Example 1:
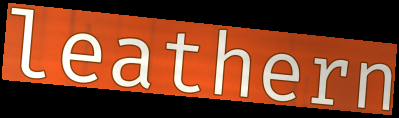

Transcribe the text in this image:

leathern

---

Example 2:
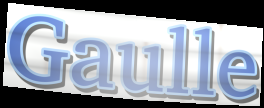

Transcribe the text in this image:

Gaulle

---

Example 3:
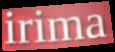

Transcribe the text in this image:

irima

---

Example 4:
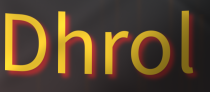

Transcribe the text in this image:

Dhrol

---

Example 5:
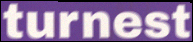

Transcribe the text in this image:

turnest